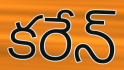
కరేన్